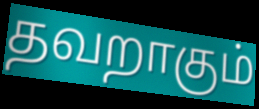
தவறாகும்